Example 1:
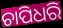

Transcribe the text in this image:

ଚାପିଧରି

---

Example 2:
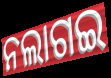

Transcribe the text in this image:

ନଲାଗଇ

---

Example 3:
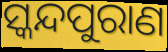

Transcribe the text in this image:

ସ୍କନ୍ଦପୁରାଣ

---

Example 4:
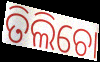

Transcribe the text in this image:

ତିଲିଚୋ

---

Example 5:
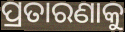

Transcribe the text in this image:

ପ୍ରତାରଣାକୁ